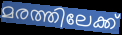
മരത്തിലേക്ക്